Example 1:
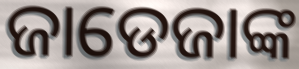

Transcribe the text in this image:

ଜାଡେଜାଙ୍କ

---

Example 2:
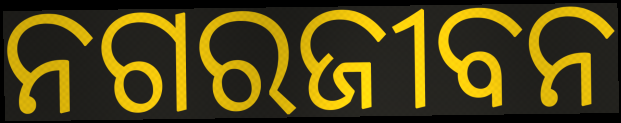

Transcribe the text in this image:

ନଗରଜୀବନ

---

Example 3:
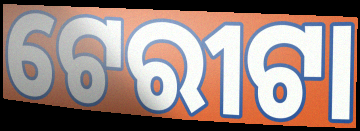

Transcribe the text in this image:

ଟେରୀଟା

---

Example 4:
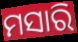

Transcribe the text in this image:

ମସାରି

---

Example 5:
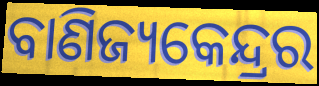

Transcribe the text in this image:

ବାଣିଜ୍ୟକେନ୍ଦ୍ରର